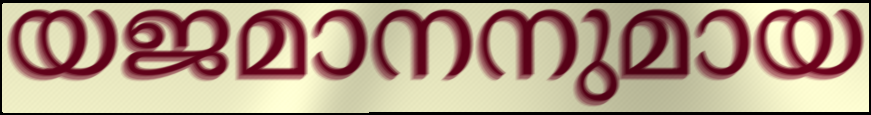
യജമാനനുമായ